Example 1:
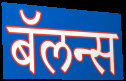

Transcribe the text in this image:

बॅलन्स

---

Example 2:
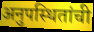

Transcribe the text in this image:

अनुपस्थितांची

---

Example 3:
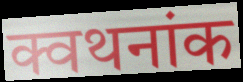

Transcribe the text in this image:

क्वथनांक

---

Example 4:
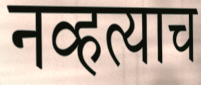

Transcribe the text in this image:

नव्हत्याच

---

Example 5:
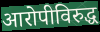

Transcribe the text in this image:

आरोपीविरुद्ध